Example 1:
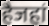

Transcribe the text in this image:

हैजहां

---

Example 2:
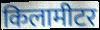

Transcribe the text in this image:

किलामीटर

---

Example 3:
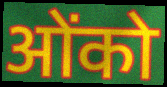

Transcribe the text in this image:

ओंको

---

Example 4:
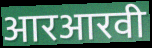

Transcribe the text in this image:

आरआरवी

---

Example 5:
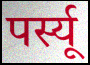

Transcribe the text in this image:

पर्स्यू